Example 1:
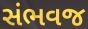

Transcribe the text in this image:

સંભવજ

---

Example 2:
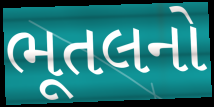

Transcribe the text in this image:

ભૂતલનો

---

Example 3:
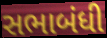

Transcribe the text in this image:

સભાબંધી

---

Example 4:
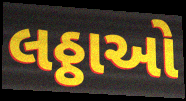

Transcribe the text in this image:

લઠ્ઠાઓ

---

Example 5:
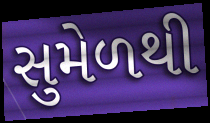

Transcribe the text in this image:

સુમેળથી